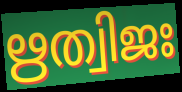
ഋത്വിജഃ